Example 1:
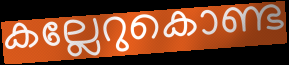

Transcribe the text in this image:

കല്ലേറുകൊണ്ട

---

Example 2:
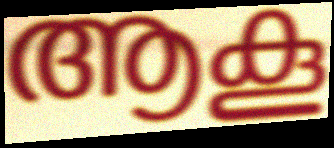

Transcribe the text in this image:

ആകൂ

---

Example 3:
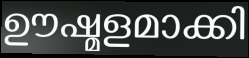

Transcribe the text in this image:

ഊഷ്മളമാക്കി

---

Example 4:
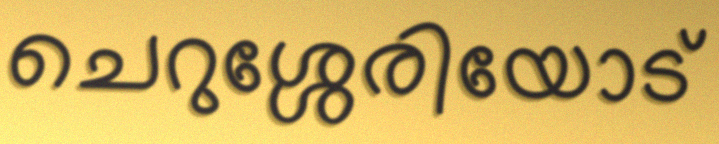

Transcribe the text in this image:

ചെറുശ്ശേരിയോട്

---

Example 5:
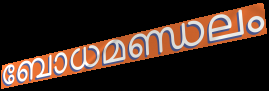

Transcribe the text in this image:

ബോധമണ്ഡലം